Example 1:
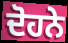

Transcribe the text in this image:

ਦੋਹਨੇ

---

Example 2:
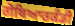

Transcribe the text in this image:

ਗੋਥਿਆਰਕੰਡੀ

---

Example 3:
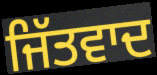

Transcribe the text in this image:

ਜਿੱਤਵਾਦ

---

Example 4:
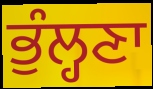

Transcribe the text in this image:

ਭੁੰਲ੍ਹਣਾ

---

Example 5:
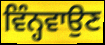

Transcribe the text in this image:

ਵਿੰਨ੍ਹਵਾਉਣ